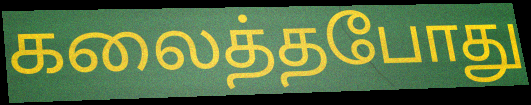
கலைத்தபோது